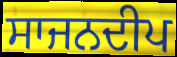
ਸਾਜਨਦੀਪ